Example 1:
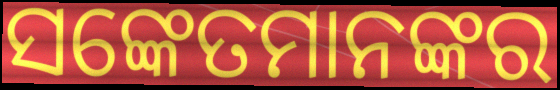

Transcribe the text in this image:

ସଙ୍କେତମାନଙ୍କର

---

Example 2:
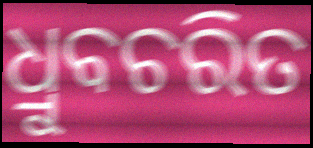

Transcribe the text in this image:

ଧ୍ରୁବଚରିତ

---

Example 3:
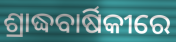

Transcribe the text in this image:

ଶ୍ରାଦ୍ଧବାର୍ଷିକୀରେ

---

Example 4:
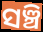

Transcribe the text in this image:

ସଞ୍ଚି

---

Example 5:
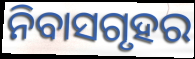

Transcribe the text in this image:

ନିବାସଗୃହର